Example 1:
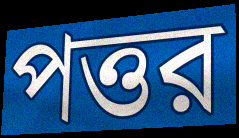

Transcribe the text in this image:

পত্তর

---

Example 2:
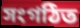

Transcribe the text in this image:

সংগঠিত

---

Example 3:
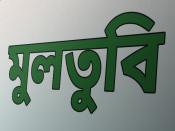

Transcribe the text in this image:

মুলতুবি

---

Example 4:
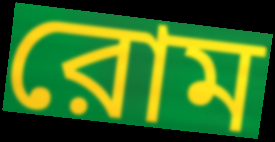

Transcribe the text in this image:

রোম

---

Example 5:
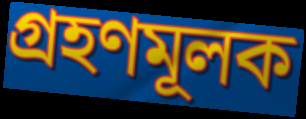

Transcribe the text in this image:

গ্রহণমূলক